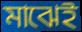
মাঝেই